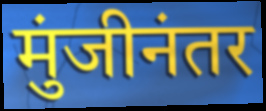
मुंजीनंतर